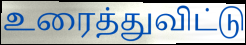
உரைத்துவிட்டு